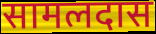
सामलदास